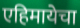
एहिमायेचा